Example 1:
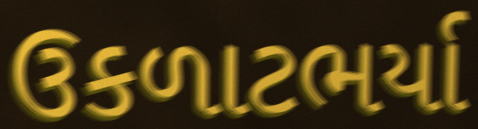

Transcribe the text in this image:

ઉકળાટભર્યા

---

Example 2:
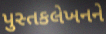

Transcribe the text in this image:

પુસ્તકલેખનને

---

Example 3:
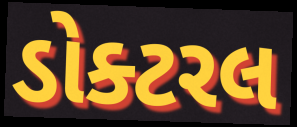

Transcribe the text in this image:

ડોક્ટરલ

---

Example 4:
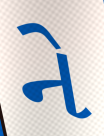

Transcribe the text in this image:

ને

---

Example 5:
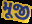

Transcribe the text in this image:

મૂજી